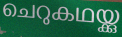
ചെറുകഥയ്ക്കു